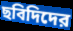
ছবিদিদের